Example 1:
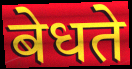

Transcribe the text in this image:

बेधते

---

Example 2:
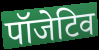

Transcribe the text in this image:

पॉजेटिव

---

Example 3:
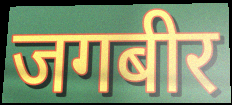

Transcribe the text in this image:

जगबीर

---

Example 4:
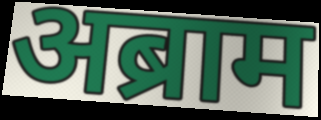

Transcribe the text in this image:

अब्राम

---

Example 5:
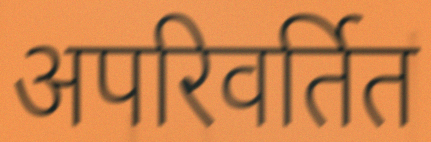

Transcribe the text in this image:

अपरिवर्तित